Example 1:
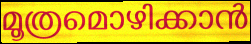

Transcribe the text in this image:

മൂത്രമൊഴിക്കാൻ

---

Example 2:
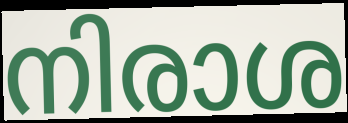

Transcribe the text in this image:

നിരാശ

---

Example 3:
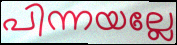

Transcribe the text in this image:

പിന്നയല്ലേ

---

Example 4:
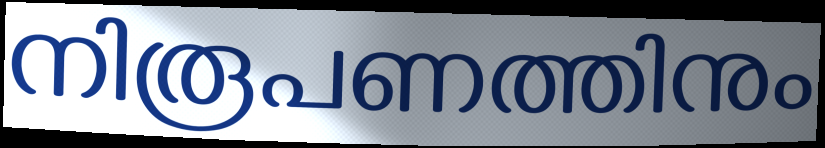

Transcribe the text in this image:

നിരൂപണത്തിനും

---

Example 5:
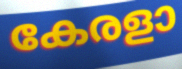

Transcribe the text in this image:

കേരളാ